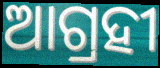
ଆଗ୍ରହୀ